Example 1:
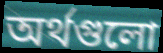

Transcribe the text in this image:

অর্থগুলো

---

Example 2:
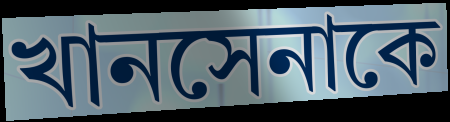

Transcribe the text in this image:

খানসেনাকে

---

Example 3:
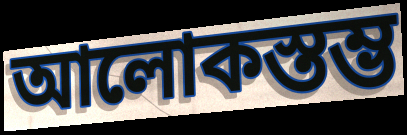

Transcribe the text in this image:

আলোকস্তম্ভ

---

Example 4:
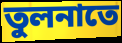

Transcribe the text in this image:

তুলনাতে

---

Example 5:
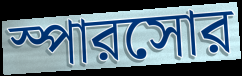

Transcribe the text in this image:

স্পারসোর